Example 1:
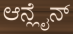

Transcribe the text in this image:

ಆನ್ಲೈನ್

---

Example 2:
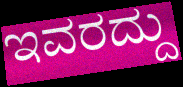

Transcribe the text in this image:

ಇವರದ್ದು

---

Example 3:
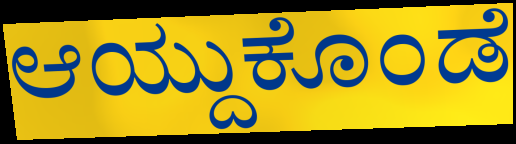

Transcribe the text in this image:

ಆಯ್ದುಕೊಂಡೆ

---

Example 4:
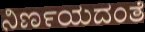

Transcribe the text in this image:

ನಿರ್ಣಯದಂತೆ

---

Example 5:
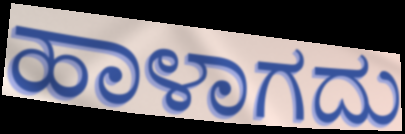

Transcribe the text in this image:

ಹಾಳಾಗದು